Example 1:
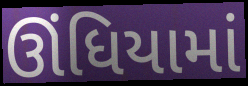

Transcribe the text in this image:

ઊંધિયામાં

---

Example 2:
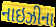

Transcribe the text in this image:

નાઇઝીના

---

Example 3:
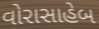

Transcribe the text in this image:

વોરાસાહેબ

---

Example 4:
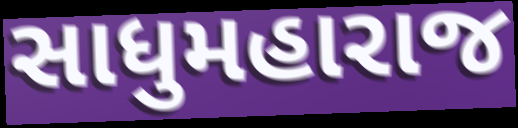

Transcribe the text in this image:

સાધુમહારાજ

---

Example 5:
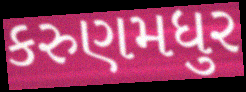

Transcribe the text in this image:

કરુણમધુર